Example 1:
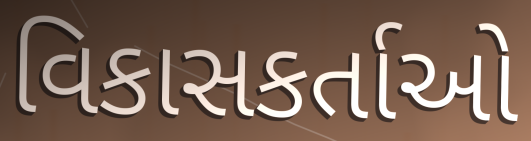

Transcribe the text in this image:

વિકાસકર્તાઓ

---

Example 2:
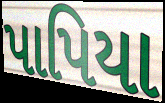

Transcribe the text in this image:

પાપિયા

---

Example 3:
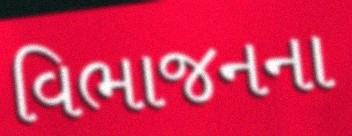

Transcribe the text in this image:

વિભાજનના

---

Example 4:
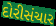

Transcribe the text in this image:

દોરીસંચાર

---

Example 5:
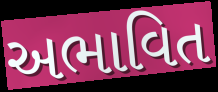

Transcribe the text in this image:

અભાવિત